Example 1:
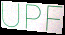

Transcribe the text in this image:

UPF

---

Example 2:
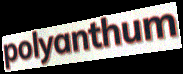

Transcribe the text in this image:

polyanthum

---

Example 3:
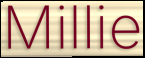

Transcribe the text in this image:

Millie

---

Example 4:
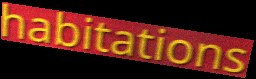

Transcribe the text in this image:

habitations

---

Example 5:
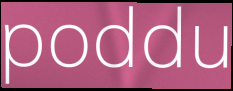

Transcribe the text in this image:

poddu